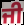
ਜੀ